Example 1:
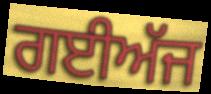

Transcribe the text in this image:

ਗਈਅੱਜ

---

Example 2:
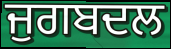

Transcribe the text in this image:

ਜੁਗਬਦਲ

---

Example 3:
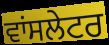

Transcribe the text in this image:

ਵਾਂਸਲੇਟਰ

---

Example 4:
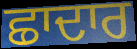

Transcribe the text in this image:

ਛਾਦਾਰ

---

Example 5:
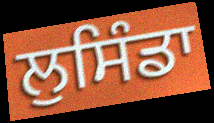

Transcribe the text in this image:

ਲੁਸਿੰਡਾ